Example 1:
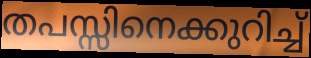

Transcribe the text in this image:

തപസ്സിനെക്കുറിച്ച്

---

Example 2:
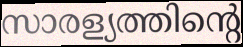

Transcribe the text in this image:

സാരള്യത്തിന്റെ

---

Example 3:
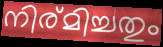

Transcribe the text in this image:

നിര്മിച്ചതും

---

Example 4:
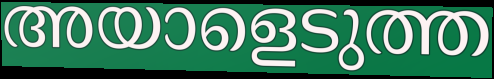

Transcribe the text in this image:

അയാളെടുത്ത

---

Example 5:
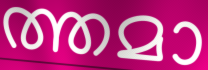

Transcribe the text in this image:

ത്തമാ